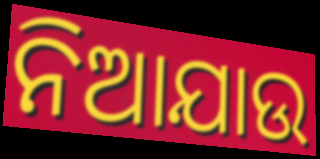
ନିଆଯାଉ